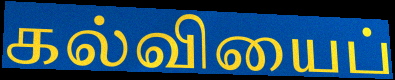
கல்வியைப்